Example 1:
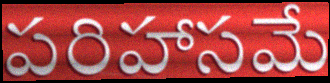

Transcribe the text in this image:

పరిహాసమే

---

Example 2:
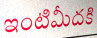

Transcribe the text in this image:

ఇంటిమీదకి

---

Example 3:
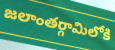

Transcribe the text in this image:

జలాంతర్గామిలోకి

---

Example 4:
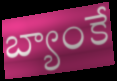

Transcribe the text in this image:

బ్యాంకే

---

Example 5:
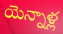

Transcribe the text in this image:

యెన్నాళ్ల